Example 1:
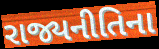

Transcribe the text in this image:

રાજ્યનીતિના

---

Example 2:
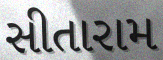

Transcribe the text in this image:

સીતારામ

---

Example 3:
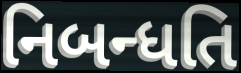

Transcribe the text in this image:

નિબન્ધતિ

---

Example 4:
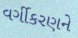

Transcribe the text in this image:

વર્ગીકરણને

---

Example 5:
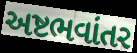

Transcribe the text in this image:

અષ્ટભવાંતર